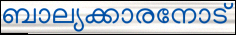
ബാല്യക്കാരനോട്